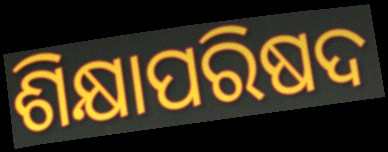
ଶିକ୍ଷାପରିଷଦ